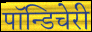
पॉन्डिचेरी